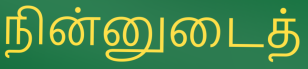
நின்னுடைத்